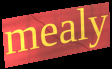
mealy